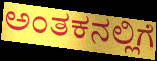
ಅಂತಕನಲ್ಲಿಗೆ